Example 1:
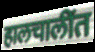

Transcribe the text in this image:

हालचालींत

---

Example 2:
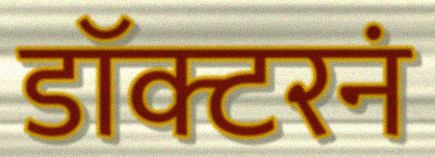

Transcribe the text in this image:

डॉक्टरनं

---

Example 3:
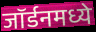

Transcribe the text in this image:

जॉर्डनमध्ये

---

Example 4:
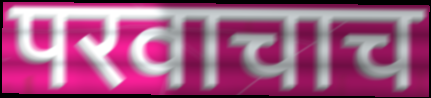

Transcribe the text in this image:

परवाचाच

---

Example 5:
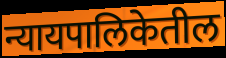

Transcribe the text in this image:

न्यायपालिकेतील